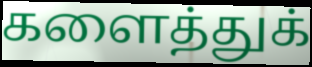
களைத்துக்